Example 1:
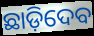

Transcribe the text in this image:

ଛାଡ଼ିଦେବ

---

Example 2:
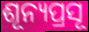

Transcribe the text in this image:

ଶୂନ୍ୟପ୍ରସୂ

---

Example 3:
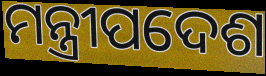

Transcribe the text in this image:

ମନ୍ତ୍ରୀପଦେଶ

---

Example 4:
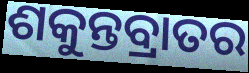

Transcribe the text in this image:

ଶକୁନ୍ତବ୍ରାତର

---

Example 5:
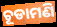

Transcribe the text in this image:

ଚୂଡାମଣି